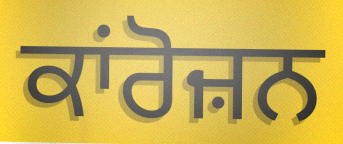
ਕਾਂਰੋਜ਼ਨ